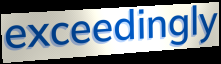
exceedingly